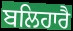
ਬਲਿਹਾਰੈ